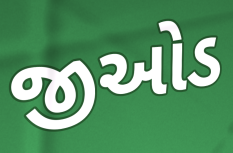
જીઓડ